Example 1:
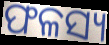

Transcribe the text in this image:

ଫଳସ୍ୟ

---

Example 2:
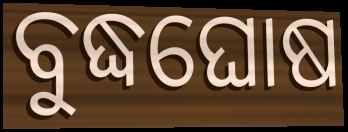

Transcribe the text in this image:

ବୁଦ୍ଧଘୋଷ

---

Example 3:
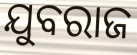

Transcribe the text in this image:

ଯୁବରାଜ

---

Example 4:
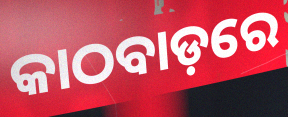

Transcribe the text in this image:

କାଠବାଡ଼ରେ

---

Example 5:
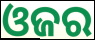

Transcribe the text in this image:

ଓଜର